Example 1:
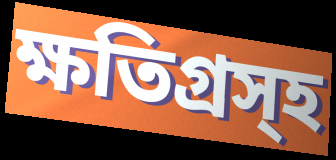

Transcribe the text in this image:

ক্ষতিগ্রস্হ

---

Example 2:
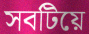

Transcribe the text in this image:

সবটিয়ে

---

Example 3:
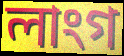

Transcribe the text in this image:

লাংগ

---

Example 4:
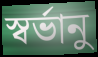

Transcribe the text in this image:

স্বর্ভানু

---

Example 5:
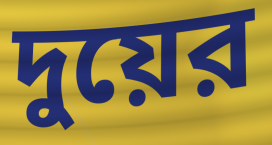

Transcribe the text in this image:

দুয়ের